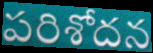
పరిశోదన